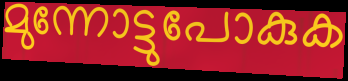
മുന്നോട്ടുപോകുക